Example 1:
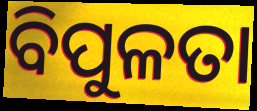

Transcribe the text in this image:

ବିପୁଳତା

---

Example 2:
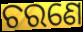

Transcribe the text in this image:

ଚରଣେ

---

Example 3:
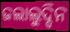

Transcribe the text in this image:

ଜଲାଲୁଦ୍ଦିନ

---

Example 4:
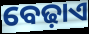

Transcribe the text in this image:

ବେଢ଼ାଏ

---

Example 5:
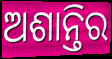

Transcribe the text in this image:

ଅଶାନ୍ତିର